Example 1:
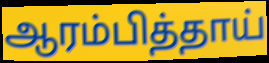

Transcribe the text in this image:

ஆரம்பித்தாய்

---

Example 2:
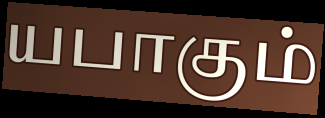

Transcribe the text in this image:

யபாகும்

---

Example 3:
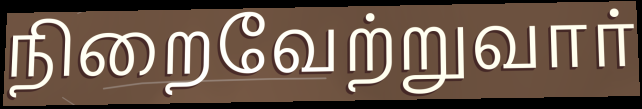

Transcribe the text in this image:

நிறைவேற்றுவார்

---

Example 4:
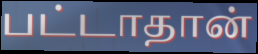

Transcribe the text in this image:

பட்டாதான்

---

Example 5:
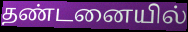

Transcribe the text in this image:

தண்டனையில்